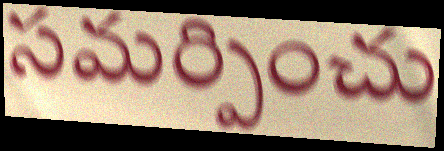
సమర్పించు